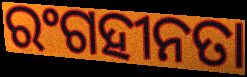
ରଂଗହୀନତା